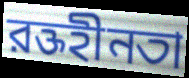
রক্তহীনতা